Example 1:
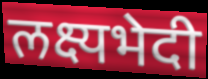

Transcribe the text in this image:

लक्ष्यभेदी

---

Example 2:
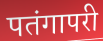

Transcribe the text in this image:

पतंगापरी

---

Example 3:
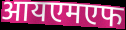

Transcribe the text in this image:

आयएमएफ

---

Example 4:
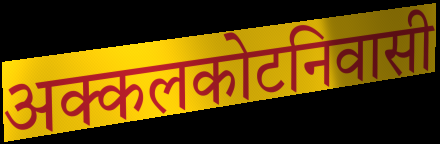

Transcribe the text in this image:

अक्कलकोटनिवासी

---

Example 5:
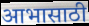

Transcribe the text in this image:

आभासाठी